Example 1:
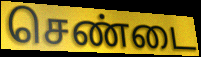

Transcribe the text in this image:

செண்டை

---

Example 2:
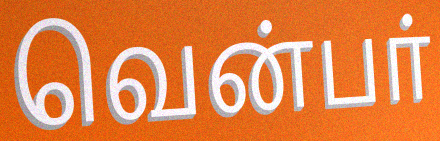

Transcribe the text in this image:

வென்பர்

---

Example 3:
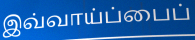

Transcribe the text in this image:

இவ்வாய்ப்பைப்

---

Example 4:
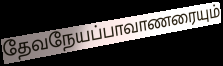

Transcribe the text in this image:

தேவநேயப்பாவாணரையும்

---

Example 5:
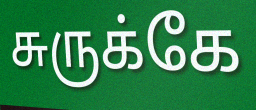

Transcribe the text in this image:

சுருக்கே